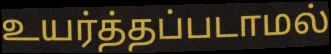
உயர்த்தப்படாமல்